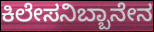
ಕಿಲೇಸನಿಬ್ಬಾನೇನ